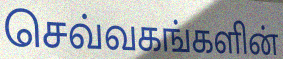
செவ்வகங்களின்